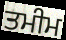
ਤਮੀਮ